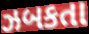
ઝબકતા